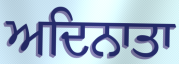
ਅਦਿਨਾਤਾ